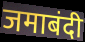
जमाबंदी